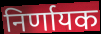
निर्णायक